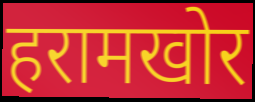
हरामखोर